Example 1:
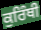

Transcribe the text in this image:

ਕੁਰਿੰਥੀ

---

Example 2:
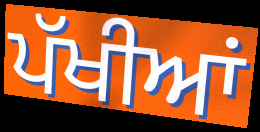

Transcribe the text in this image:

ਪੱਖੀਆਂ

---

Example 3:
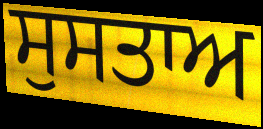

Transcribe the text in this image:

ਸੁਸਤਾਅ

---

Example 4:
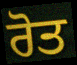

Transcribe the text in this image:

ਰੋਤ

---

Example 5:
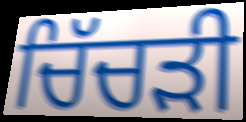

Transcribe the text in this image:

ਚਿੱਚੜੀ